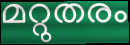
മറ്റുതരം